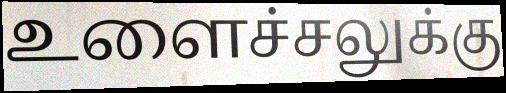
உளைச்சலுக்கு